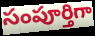
సంపూర్తిగా